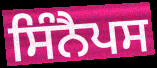
ਸਿੰਨੈਪਸ